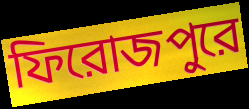
ফিরোজপুরে